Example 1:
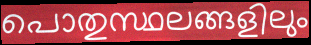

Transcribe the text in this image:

പൊതുസ്ഥലങ്ങളിലും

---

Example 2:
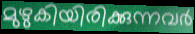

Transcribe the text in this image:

മുഴുകിയിരിക്കുന്നവർ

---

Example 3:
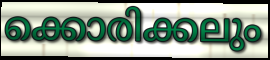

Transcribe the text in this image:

ക്കൊരിക്കലും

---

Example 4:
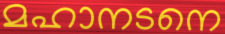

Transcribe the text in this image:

മഹാനടനെ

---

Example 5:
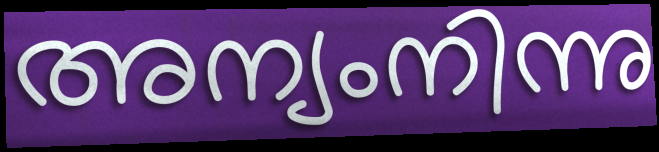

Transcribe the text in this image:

അന്യംനിന്നു